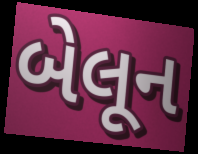
બેલૂન